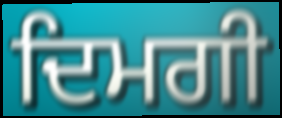
ਦਿਮਗੀ